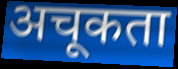
अचूकता